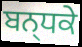
ਬਨ੍ਧਕੇ